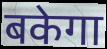
बकेगा